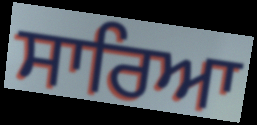
ਸਾਰਿਆ